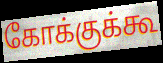
கோக்குக்கூ